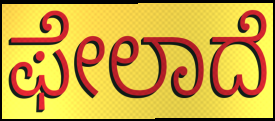
ಫೇಲಾದೆ